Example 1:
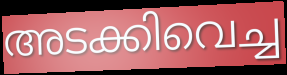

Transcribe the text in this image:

അടക്കിവെച്ച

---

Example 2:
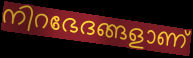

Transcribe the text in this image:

നിറഭേദങ്ങളാണ്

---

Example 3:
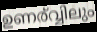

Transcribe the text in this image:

ഉണര്വ്വിലും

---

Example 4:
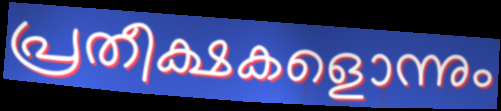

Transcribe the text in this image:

പ്രതീക്ഷകളൊന്നും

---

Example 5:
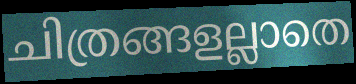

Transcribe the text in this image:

ചിത്രങ്ങളല്ലാതെ